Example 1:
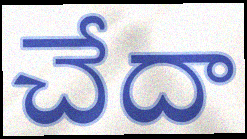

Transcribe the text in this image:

చేదా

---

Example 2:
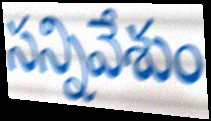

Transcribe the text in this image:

సన్నివేశుం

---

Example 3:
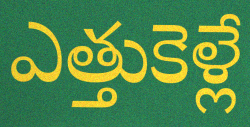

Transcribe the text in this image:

ఎత్తుకెళ్లే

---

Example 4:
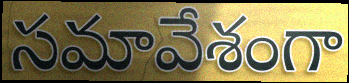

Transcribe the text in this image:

సమావేశంగా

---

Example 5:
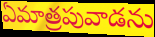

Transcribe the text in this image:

ఏమాత్రపువాడను